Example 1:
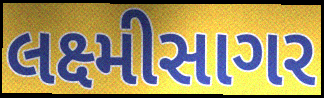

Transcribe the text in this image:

લક્ષ્મીસાગર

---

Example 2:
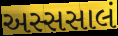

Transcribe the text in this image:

અસ્સસાલં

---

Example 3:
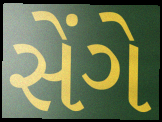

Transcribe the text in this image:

સેંગે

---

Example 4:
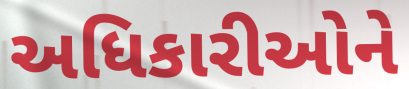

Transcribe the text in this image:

અધિકારીઓને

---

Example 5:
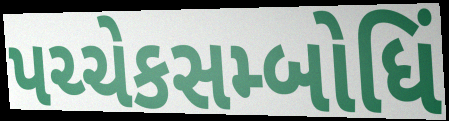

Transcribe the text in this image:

પચ્ચેકસમ્બોધિં